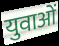
युवाओं